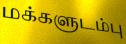
மக்களுடம்பு